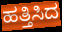
ಹತ್ತಿಸಿದ